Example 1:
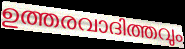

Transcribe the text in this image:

ഉത്തരവാദിത്തവും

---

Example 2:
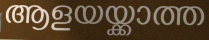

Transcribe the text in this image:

ആളയയ്ക്കാത്ത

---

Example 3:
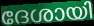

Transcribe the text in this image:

ദേശായി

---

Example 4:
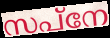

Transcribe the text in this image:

സപ്നേ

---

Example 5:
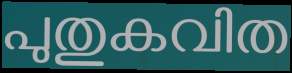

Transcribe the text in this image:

പുതുകവിത